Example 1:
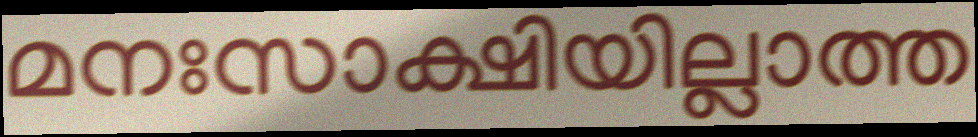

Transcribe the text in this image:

മനഃസാക്ഷിയില്ലാത്ത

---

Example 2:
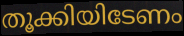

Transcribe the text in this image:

തൂക്കിയിടേണം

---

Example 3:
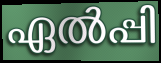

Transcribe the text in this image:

ഏൽപ്പി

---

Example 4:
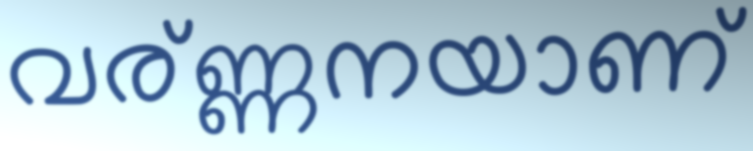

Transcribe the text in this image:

വര്ണ്ണനയാണ്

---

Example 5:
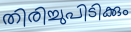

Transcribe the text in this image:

തിരിച്ചുപിടിക്കും